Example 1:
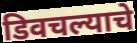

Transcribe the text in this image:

डिवचल्याचे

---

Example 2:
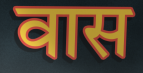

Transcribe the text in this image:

वास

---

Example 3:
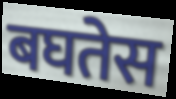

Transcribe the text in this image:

बघतेस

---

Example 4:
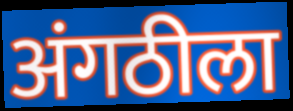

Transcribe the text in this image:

अंगठीला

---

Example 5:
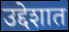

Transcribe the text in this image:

उद्देशात